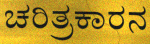
ಚರಿತ್ರಕಾರನ